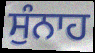
ਸੁੰਨਾਹ